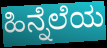
ಹಿನ್ನೆಲೆಯ